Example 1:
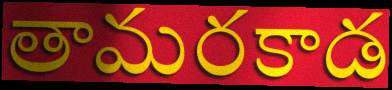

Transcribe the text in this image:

తామరకాడ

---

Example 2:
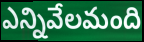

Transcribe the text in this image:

ఎన్నివేలమంది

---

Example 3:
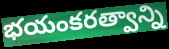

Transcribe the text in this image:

భయంకరత్వాన్ని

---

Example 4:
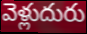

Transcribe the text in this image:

వెళ్లుదురు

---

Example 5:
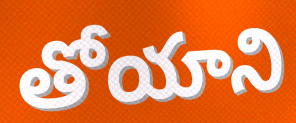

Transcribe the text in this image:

తోయాని